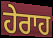
ਹੇਰਾਹ